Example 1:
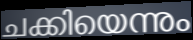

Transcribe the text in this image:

ചക്കിയെന്നും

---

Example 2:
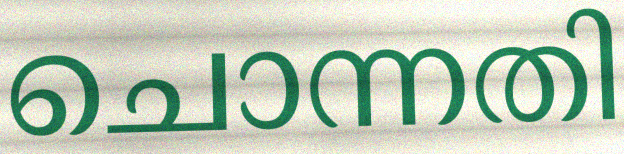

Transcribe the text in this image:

ചൊന്നതി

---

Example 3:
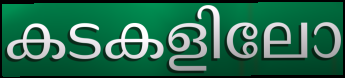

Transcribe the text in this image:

കടകളിലോ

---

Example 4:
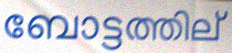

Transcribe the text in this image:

ബോട്ടത്തില്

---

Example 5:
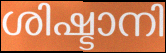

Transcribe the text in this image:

ശിഷ്ടാനി